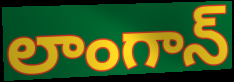
లాంగాన్